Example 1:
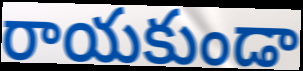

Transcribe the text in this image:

రాయకుండా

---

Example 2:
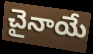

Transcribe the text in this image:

చైనాయే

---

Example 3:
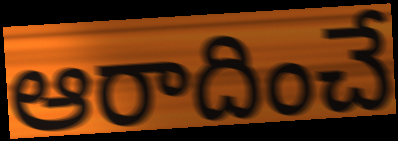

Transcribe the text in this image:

ఆరాదించే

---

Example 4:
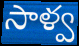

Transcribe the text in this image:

సాళ్వ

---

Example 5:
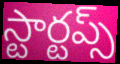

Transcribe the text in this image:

స్టార్టప్స్